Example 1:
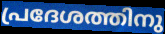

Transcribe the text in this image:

പ്രദേശത്തിനു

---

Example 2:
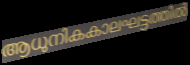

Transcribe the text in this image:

ആധുനികകാലഘട്ടത്തിൽ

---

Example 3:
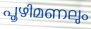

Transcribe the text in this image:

പൂഴിമണലും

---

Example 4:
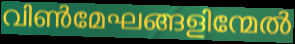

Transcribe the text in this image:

വിൺമേഘങ്ങളിന്മേൽ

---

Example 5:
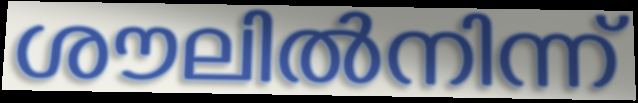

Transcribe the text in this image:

ശൗലിൽനിന്ന്